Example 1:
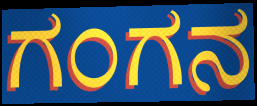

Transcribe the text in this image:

ಗಂಗನ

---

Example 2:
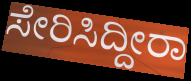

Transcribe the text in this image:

ಸೇರಿಸಿದ್ದೀರಾ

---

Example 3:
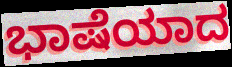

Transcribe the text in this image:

ಭಾಷೆಯಾದ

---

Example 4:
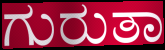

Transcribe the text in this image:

ಗುರುತಾ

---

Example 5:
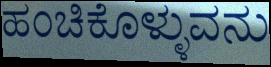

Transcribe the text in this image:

ಹಂಚಿಕೊಳ್ಳುವನು